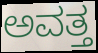
ಅವತ್ತ